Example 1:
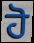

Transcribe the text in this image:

ਹੋ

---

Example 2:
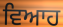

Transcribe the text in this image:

ਵਿਆਹ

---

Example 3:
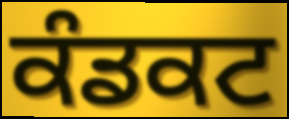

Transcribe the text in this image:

ਕੰਡਕਟ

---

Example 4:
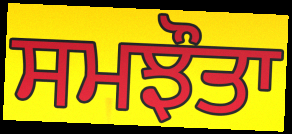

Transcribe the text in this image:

ਸਮਝੌਤਾ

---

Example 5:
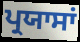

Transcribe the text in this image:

ਪ੍ਰਯਾਸਾਂ